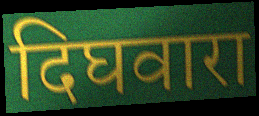
दिघवारा